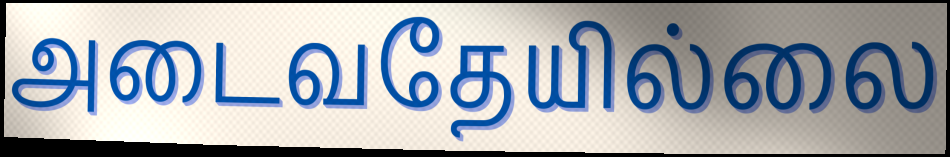
அடைவதேயில்லை